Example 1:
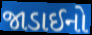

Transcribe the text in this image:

જાડાઈનો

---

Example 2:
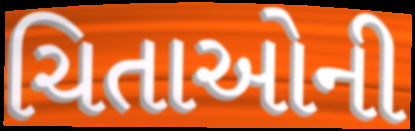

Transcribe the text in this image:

ચિતાઓની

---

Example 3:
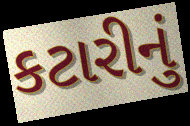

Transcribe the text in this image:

કટારીનું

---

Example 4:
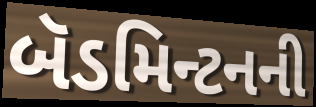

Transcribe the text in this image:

બૅડમિન્ટનની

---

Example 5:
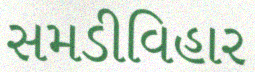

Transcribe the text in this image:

સમડીવિહાર